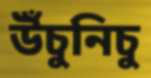
উঁচুনিচু